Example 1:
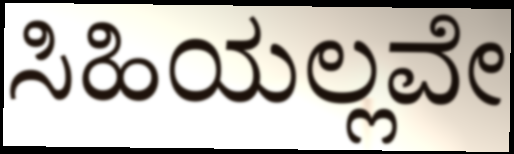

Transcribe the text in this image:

ಸಿಹಿಯಲ್ಲವೇ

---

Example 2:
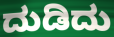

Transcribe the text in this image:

ದುಡಿದು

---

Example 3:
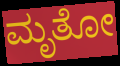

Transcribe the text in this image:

ಮೃತೋ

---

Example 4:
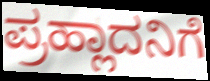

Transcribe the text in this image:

ಪ್ರಹ್ಲಾದನಿಗೆ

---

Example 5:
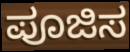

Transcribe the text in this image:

ಪೂಜಿಸ